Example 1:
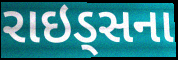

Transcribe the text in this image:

રાઇડ્સના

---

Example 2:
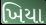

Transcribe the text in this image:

ખિયા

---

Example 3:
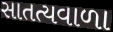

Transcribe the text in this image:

સાતત્યવાળા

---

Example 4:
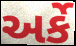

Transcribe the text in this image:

અર્કે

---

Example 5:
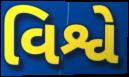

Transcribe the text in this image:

વિશ્વે